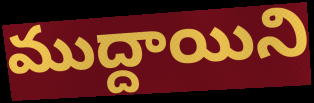
ముద్దాయిని